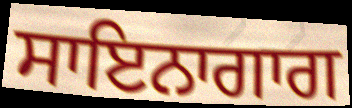
ਸਾਇਨਾਗਾਗ